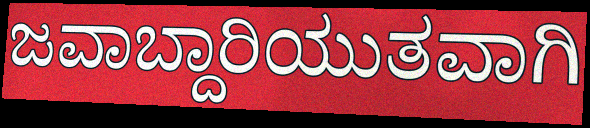
ಜವಾಬ್ದಾರಿಯುತವಾಗಿ